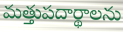
మత్తుపదార్థాలను